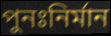
পুনঃনির্মান